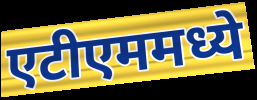
एटीएममध्ये